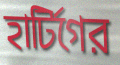
হার্টিগের